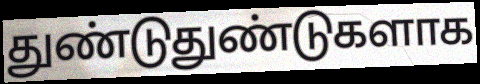
துண்டுதுண்டுகளாக